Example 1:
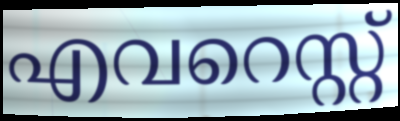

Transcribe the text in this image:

എവറെസ്റ്റ്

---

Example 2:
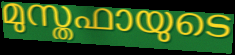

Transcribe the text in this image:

മുസ്തഫായുടെ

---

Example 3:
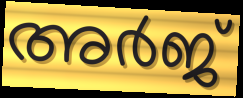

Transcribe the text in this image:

അർജ്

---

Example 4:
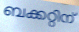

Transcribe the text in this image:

ബക്കറ്റിന്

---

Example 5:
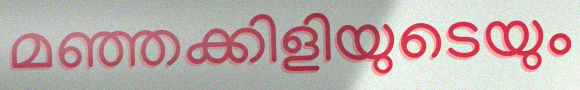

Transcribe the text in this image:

മഞ്ഞക്കിളിയുടെയും